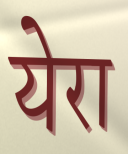
येरा